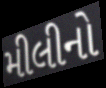
મીલીનો